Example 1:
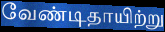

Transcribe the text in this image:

வேண்டிதாயிற்று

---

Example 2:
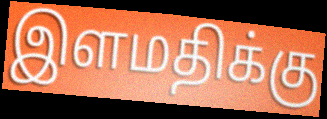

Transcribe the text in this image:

இளமதிக்கு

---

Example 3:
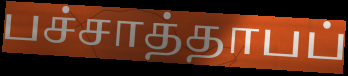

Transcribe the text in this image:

பச்சாத்தாபப்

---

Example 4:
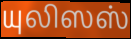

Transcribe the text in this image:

யுலிஸஸ்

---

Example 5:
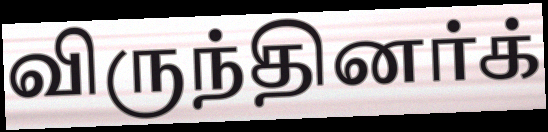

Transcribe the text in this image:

விருந்தினர்க்